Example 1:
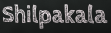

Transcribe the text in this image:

Shilpakala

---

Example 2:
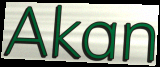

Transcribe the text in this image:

Akan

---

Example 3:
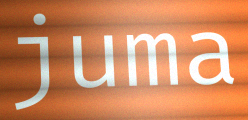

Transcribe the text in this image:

juma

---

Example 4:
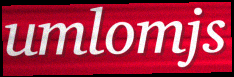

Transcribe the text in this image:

umlomjs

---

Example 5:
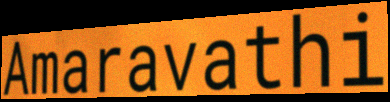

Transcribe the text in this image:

Amaravathi